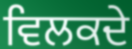
ਵਿਲਕਦੇ